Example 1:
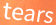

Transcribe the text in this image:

tears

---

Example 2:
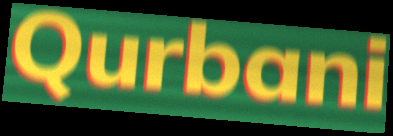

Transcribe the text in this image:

Qurbani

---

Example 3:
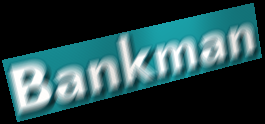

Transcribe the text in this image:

Bankman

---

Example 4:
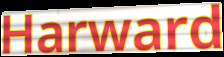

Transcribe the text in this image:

Harward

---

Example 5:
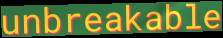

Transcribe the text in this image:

unbreakable